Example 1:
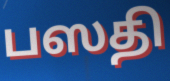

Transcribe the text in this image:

பஸதி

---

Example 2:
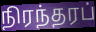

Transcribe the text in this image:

நிரந்தரப்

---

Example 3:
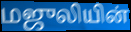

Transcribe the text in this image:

மஜுலியின்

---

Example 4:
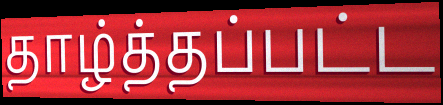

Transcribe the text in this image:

தாழ்த்தப்பட்ட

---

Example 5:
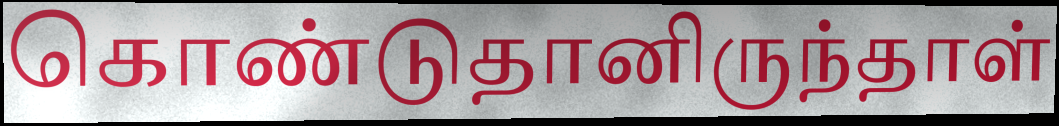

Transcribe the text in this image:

கொண்டுதானிருந்தாள்